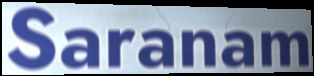
Saranam